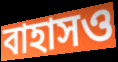
বাহাসও